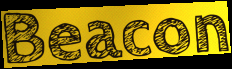
Beacon